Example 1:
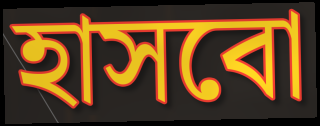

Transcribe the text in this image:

হাসবো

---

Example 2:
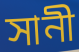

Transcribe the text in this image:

সানী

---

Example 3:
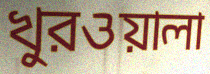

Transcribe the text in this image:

খুরওয়ালা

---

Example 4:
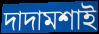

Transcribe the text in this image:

দাদামশাই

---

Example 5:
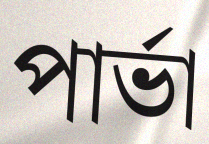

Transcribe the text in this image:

পার্ভা